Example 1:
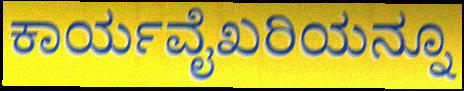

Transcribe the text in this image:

ಕಾರ್ಯವೈಖರಿಯನ್ನೂ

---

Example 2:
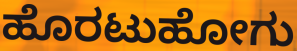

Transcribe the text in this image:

ಹೊರಟುಹೋಗು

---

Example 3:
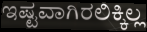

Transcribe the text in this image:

ಇಷ್ಟವಾಗಿರಲಿಕ್ಕಿಲ್ಲ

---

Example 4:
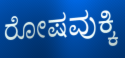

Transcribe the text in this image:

ರೋಷವುಕ್ಕಿ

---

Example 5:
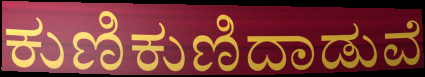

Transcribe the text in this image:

ಕುಣಿಕುಣಿದಾಡುವೆ